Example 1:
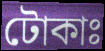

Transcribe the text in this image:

টোকাঃ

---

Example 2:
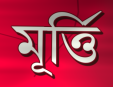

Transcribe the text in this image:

মূৰ্ত্তি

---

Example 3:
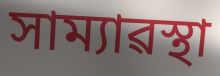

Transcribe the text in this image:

সাম্যাৱস্থা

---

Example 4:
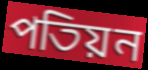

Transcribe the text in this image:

পতিয়ন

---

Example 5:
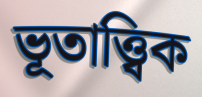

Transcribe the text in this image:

ভূতাত্ত্বিক